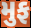
મુફ